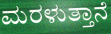
ಮರಳುತ್ತಾನೆ